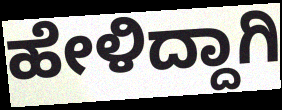
ಹೇಳಿದ್ದಾಗಿ